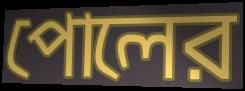
পোলের